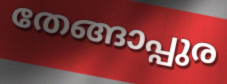
തേങ്ങാപ്പുര